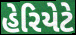
હેરિયેટે